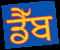
ਡੈੱਬ